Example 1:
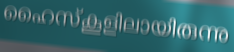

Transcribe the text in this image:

ഹൈസ്‌കൂളിലായിരുന്നു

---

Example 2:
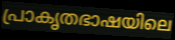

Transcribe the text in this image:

പ്രാകൃതഭാഷയിലെ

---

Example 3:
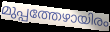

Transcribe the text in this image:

മുപ്പത്തേഴായിരം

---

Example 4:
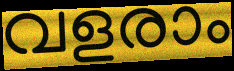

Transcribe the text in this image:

വളരാം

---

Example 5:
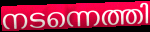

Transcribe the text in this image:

നടന്നെത്തി